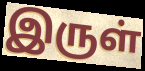
இருள்